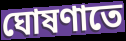
ঘোষণাতে